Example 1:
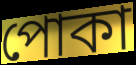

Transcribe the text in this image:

পোকা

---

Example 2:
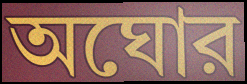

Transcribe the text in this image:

অঘোর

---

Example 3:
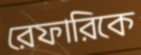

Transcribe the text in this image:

রেফারিকে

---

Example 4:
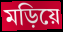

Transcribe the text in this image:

মড়িয়ে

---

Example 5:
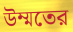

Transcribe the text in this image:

উম্মতের